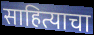
साहित्याचा